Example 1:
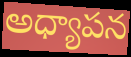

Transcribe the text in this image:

అధ్యాపన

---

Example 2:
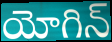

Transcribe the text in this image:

యోగిన్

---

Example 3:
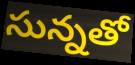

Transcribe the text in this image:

సున్నతో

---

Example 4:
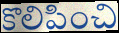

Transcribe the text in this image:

కొలిపించి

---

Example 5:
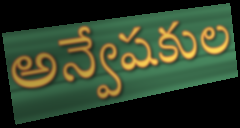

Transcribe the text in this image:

అన్వేషకుల